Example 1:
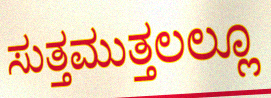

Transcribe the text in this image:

ಸುತ್ತಮುತ್ತಲಲ್ಲೂ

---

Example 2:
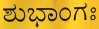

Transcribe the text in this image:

ಶುಭಾಂಗಃ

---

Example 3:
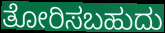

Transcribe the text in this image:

ತೋರಿಸಬಹುದು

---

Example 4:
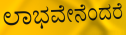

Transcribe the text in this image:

ಲಾಭವೇನೆಂದರೆ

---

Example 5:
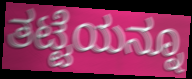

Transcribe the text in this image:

ತಟ್ಟೆಯನ್ನೂ